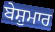
ਬੇਸ਼ੁਮਾਰ